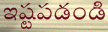
ఇష్టపడండి